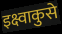
इक्ष्वाकुसे